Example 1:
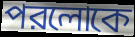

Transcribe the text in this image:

পরলোকে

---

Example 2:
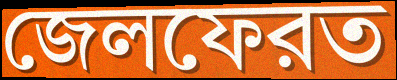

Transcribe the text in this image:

জেলফেরত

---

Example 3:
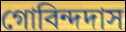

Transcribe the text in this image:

গোবিন্দদাস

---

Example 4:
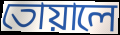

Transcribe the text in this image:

তোয়ালে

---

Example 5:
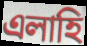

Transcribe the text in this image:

এলাহি